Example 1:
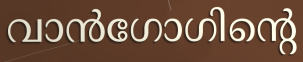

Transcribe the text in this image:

വാൻഗോഗിന്റെ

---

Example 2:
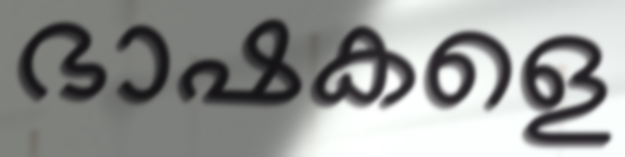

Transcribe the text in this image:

ഭാഷകളെ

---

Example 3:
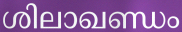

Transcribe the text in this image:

ശിലാഖണ്ഡം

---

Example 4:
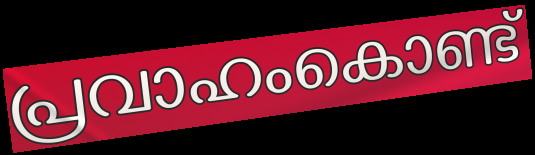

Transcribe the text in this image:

പ്രവാഹംകൊണ്ട്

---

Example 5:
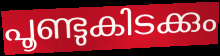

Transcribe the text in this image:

പൂണ്ടുകിടക്കും